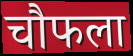
चौफला